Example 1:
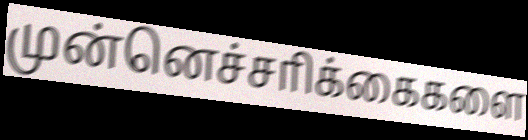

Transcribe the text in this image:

முன்னெச்சரிக்கைகளை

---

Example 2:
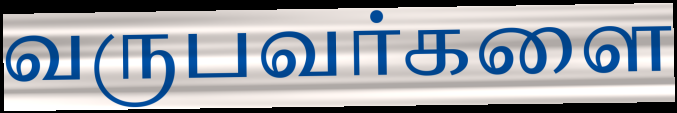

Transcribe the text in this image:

வருபவர்களை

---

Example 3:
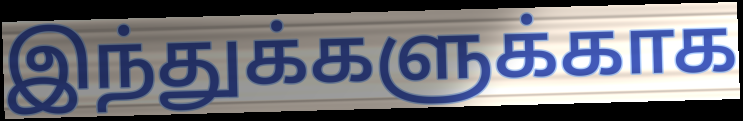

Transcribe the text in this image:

இந்துக்களுக்காக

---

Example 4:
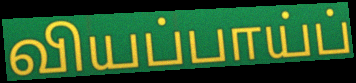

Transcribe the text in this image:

வியப்பாய்ப்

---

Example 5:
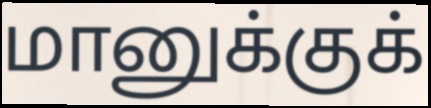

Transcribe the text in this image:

மானுக்குக்